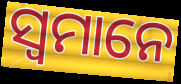
ସ୍ୱମାନେ